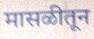
मासळीतून